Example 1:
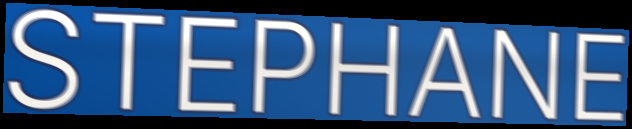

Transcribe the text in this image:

STEPHANE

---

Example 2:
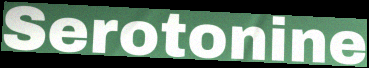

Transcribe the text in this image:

Serotonine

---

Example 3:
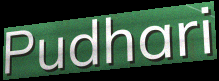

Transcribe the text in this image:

Pudhari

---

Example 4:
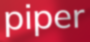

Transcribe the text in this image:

piper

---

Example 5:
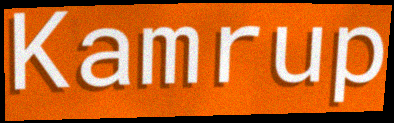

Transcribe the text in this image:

Kamrup